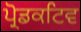
ਪ੍ਰੋਡਕਟਿਵ